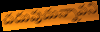
చదువుచున్నావని